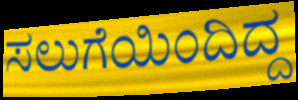
ಸಲುಗೆಯಿಂದಿದ್ದ